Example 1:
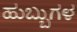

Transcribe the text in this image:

ಹುಬ್ಬುಗಳ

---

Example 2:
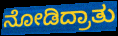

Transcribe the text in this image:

ನೋಡಿದ್ರಾತು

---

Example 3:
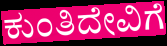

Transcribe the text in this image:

ಕುಂತಿದೇವಿಗೆ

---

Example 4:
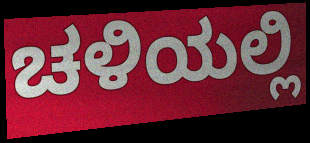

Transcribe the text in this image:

ಚಳಿಯಲ್ಲಿ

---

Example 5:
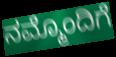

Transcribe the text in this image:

ನಮ್ಮೊಂದಿಗೆ